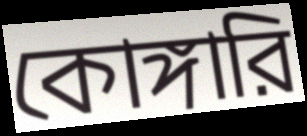
কোঙ্গারি